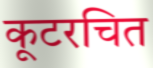
कूटरचित